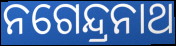
ନଗେନ୍ଦ୍ରନାଥ